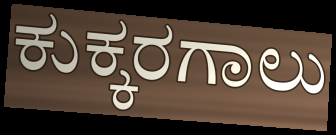
ಕುಕ್ಕರಗಾಲು